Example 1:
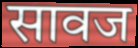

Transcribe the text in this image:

सावज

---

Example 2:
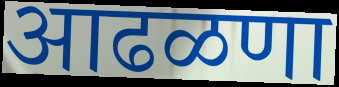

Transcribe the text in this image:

आढळणा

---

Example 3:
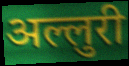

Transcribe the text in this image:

अल्लुरी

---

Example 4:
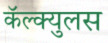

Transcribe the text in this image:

कॅल्क्युलस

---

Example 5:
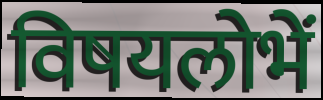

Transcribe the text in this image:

विषयलोभें